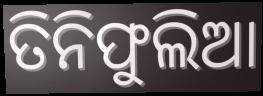
ତିନିଫୁଲିଆ